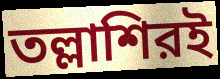
তল্লাশিরই